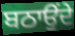
ਬਠਾਉਂਦੇ